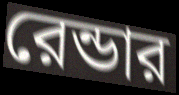
রেন্ডার